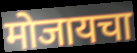
मोजायचा